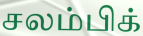
சலம்பிக்